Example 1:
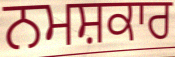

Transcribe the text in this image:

ਨਮਸ਼ਕਾਰ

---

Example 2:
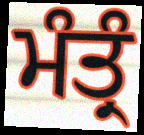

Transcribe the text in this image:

ਮੰਤ੍ਰੰ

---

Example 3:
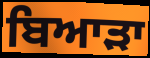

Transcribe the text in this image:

ਬਿਆੜਾ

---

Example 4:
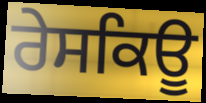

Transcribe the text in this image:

ਰੇਸਕਿਊ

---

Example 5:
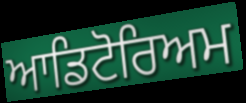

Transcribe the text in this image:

ਆਡਿਟੋਰਿਅਮ